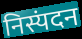
निस्यंदन